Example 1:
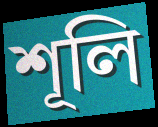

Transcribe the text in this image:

শূলি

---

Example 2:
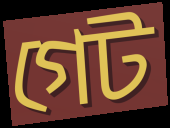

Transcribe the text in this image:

গেট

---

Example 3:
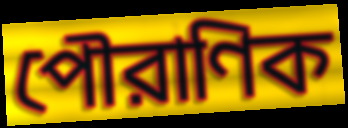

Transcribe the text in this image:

পৌরাণিক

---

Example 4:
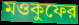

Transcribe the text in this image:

মওকুফের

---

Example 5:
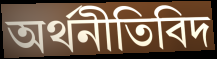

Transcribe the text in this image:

অর্থনীতিবিদ